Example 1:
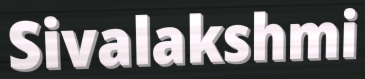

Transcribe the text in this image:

Sivalakshmi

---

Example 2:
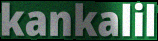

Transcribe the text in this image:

kankalil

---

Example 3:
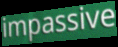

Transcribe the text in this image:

impassive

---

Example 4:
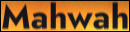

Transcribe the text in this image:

Mahwah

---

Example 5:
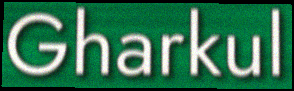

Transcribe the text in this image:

Gharkul